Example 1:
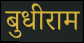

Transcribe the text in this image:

बुधीराम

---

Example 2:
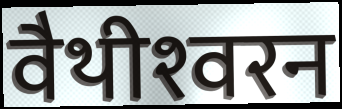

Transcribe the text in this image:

वैथीश्वरन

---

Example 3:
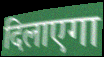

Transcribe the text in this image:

दिलाएगा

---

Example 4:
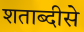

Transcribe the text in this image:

शताब्दीसे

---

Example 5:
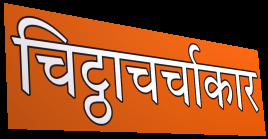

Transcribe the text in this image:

चिट्ठाचर्चाकार